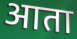
आता